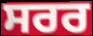
ਸਰਰ